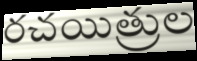
రచయిత్రుల